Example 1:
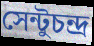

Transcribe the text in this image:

সেন্টুচন্দ্র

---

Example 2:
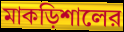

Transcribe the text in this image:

মাকড়িশালের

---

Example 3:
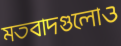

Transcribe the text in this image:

মতবাদগুলোও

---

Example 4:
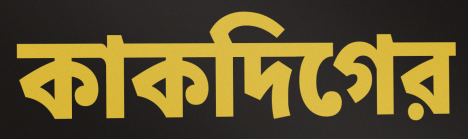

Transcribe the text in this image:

কাকদিগের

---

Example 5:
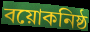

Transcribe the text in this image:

বয়োকনিষ্ঠ